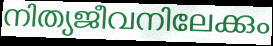
നിത്യജീവനിലേക്കും